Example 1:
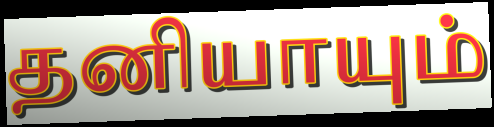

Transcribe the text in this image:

தனியாயும்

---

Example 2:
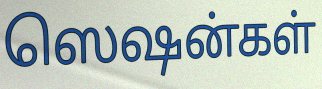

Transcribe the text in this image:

ஸெஷன்கள்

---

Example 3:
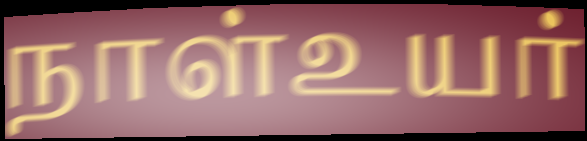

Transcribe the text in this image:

நாள்உயர்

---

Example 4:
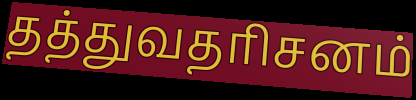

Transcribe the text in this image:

தத்துவதரிசனம்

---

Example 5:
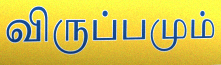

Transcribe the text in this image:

விருப்பமும்